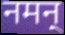
नमन्